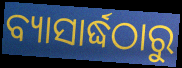
ବ୍ୟାସାର୍ଦ୍ଧଠାରୁ